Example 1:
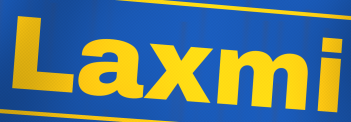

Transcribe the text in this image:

Laxmi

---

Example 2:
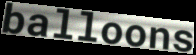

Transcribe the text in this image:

balloons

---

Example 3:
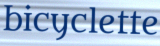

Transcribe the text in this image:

bicyclette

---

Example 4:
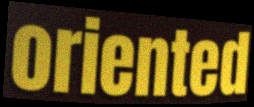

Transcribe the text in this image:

oriented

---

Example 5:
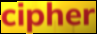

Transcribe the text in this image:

cipher